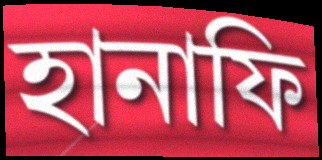
হানাফি